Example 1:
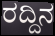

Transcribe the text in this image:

ರದ್ದಿನ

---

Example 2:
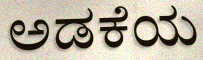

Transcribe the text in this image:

ಅಡಕೆಯ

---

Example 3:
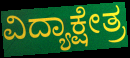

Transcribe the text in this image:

ವಿದ್ಯಾಕ್ಷೇತ್ರ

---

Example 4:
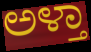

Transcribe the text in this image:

ಅಳ್ತಾ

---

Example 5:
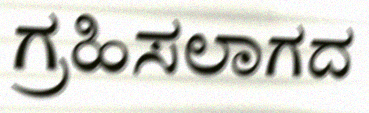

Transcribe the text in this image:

ಗ್ರಹಿಸಲಾಗದ